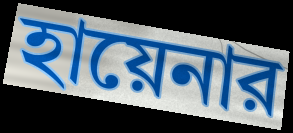
হায়েনার